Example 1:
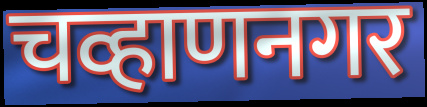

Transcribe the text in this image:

चव्हाणनगर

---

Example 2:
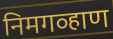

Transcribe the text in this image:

निमगव्हाण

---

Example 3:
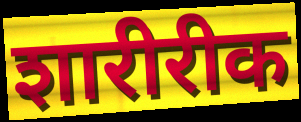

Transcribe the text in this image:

शारीरीक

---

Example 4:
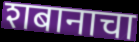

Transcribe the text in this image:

शबानाचा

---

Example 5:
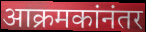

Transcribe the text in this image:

आक्रमकांनंतर